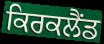
ਕਿਰਕਲੈਂਡ